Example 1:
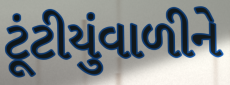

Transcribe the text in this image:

ટૂંટીયુંવાળીને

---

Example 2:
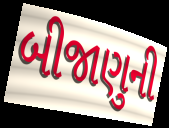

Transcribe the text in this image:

બીજાણુની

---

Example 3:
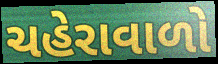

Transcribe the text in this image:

ચહેરાવાળો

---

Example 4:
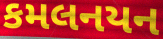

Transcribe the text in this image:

કમલનયન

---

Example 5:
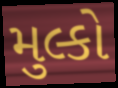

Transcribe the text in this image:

મુલ્કો